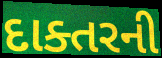
દાક્તરની